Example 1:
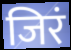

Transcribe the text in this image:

जिरं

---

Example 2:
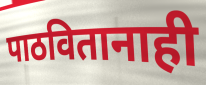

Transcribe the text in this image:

पाठवितानाही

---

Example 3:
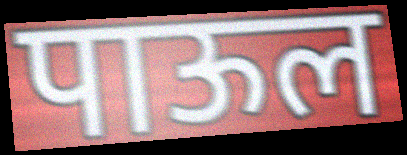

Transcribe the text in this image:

पाऊल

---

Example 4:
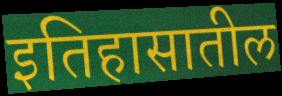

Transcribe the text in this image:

इतिहासातील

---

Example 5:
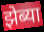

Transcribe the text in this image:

झेब्या